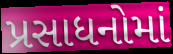
પ્રસાધનોમાં